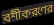
বশীকরণের